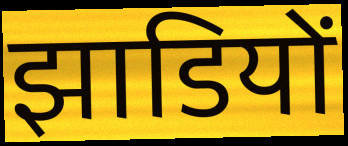
झाडियों